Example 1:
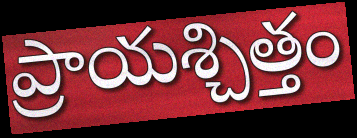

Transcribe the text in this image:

ప్రాయశ్చిత్తం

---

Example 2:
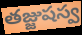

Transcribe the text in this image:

తజ్జుషస్వ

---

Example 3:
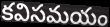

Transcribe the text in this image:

కవిసమయం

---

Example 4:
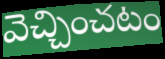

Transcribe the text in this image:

వెచ్చించటం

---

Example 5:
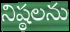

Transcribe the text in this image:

నిష్ఠలను